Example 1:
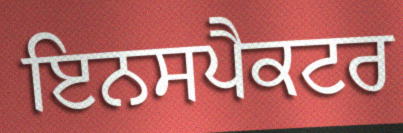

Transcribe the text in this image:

ਇਨਸਪੈਕਟਰ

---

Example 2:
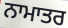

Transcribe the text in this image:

ਨਾਮਾਤਰ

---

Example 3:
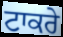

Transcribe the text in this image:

ਟਾਕਰੇ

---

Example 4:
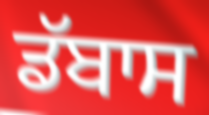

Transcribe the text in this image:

ਡੱਬਾਸ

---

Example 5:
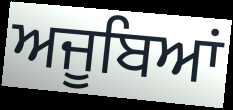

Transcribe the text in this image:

ਅਜੂਬਿਆਂ